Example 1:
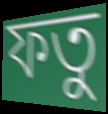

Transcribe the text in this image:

ফতু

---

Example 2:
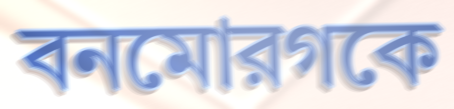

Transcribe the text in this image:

বনমোরগকে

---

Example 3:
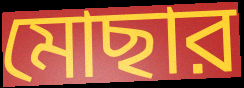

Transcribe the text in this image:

মোছার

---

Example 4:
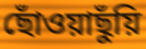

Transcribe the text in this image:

ছোঁওয়াছুঁয়ি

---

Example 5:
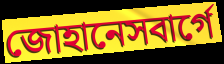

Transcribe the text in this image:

জোহানেসবার্গে